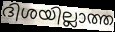
ദിശയില്ലാത്ത